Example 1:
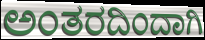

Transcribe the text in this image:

ಅಂತರದಿಂದಾಗಿ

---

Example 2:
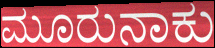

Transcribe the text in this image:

ಮೂರುನಾಕು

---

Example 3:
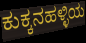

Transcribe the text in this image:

ಕುಕ್ಕನಹಳ್ಳಿಯ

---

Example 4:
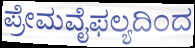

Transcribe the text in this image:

ಪ್ರೇಮವೈಫಲ್ಯದಿಂದ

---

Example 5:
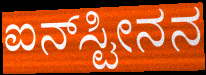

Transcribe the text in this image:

ಐನ್‌ಸ್ಟೀನನ